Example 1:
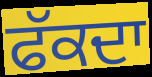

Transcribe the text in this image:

ਫੱਕਦਾ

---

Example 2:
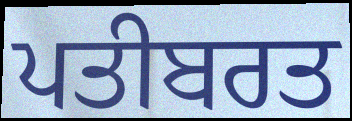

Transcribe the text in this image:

ਪਤੀਬਰਤ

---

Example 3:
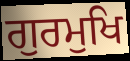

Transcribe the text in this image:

ਗੁਰਮੁਖਿ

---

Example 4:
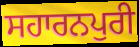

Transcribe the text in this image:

ਸਹਾਰਨਪੁਰੀ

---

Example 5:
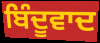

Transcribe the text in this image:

ਬਿੰਦੂਵਾਦ